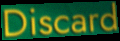
Discard